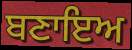
ਬਣਾਇਅ